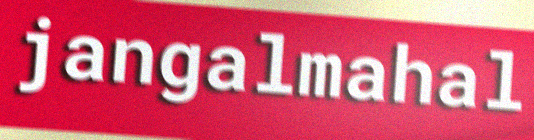
jangalmahal